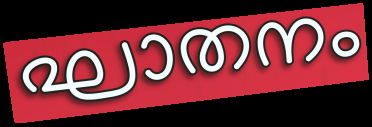
ഘാതനം